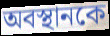
অবস্থানকে